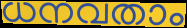
ധനവതാം